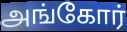
அங்கோர்